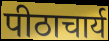
पीठाचार्य